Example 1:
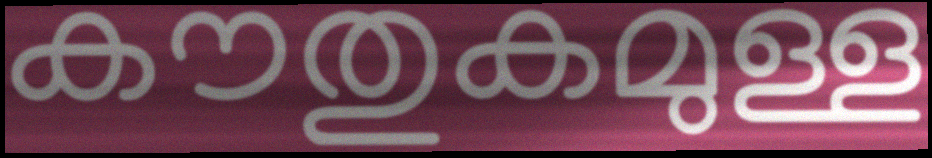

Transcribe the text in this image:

കൗതുകമുള്ള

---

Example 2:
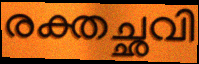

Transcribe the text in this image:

രക്തച്ഛവി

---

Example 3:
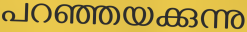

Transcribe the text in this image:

പറഞ്ഞയക്കുന്നു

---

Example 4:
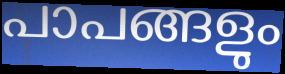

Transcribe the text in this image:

പാപങ്ങളും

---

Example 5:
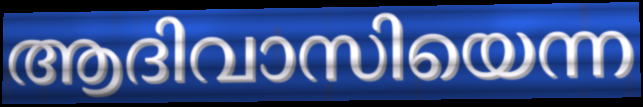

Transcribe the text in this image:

ആദിവാസിയെന്ന